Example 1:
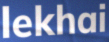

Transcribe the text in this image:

lekhai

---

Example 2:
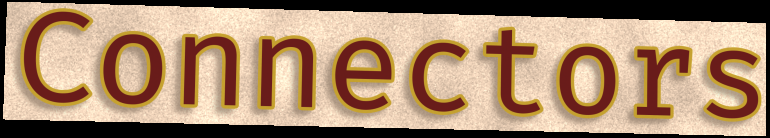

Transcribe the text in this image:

Connectors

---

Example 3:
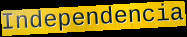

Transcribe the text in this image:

Independencia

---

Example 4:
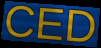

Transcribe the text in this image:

CED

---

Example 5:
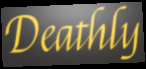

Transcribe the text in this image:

Deathly